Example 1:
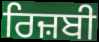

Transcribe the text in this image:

ਰਿਜ਼ਬੀ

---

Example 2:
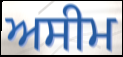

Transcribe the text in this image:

ਅਸੀਮ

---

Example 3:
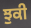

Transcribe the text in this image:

ਝੁਕੀ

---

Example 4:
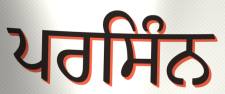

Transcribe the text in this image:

ਪਰਸਿੰਨ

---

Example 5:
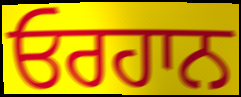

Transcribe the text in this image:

ਓਰਹਾਨ